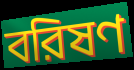
বরিষণ